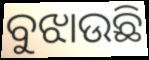
ବୁଝାଉଛି